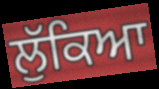
ਲੁੱਕਿਆ